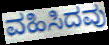
ವಹಿಸಿದವು